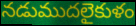
నడుముదలైకుళం